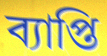
ব্যাপ্তি